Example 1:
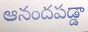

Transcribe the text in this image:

ఆనందపడ్డా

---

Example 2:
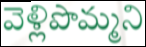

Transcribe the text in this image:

వెళ్లిపొమ్మని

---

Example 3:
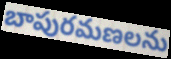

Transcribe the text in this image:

బాపురమణలను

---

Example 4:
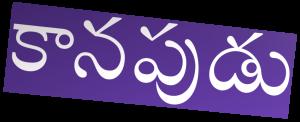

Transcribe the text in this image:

కానపుడు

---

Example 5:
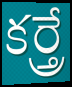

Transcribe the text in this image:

కర్త్రే